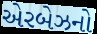
એરબેઝનો